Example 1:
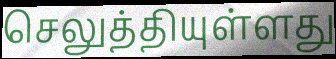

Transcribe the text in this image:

செலுத்தியுள்ளது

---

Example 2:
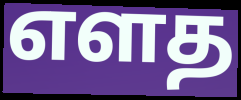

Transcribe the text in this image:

எளத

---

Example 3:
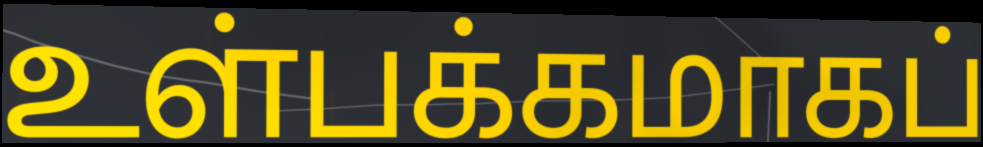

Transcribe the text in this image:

உள்பக்கமாகப்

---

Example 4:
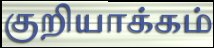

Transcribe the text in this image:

குறியாக்கம்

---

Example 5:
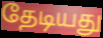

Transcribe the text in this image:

தேடியது